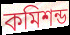
কমিশন্ড